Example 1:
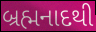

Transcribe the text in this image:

બ્રહ્મનાદથી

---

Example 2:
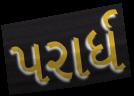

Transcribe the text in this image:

પરાર્ધ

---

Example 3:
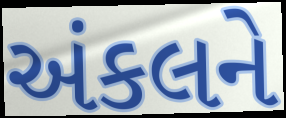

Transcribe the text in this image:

અંકલને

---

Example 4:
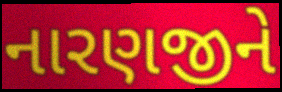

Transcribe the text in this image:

નારણજીને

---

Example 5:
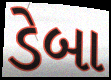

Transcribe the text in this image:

ડેબા